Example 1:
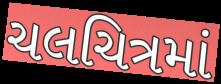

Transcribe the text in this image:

ચલચિત્રમાં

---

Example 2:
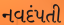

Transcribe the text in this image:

નવદંપતી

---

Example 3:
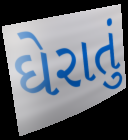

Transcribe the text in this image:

ઘેરાતું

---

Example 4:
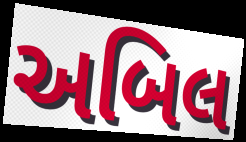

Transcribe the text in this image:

અબિલ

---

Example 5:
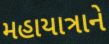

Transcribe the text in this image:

મહાયાત્રાને